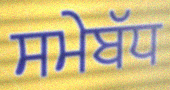
ਸਮੇਬੱਧ